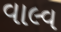
વાલ્વ